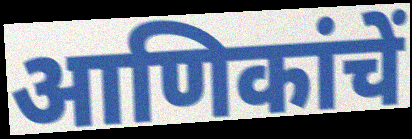
आणिकांचें